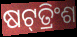
ଷଟ୍‌ତ୍ରିଂଶ